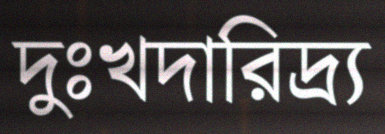
দুঃখদারিদ্র্য